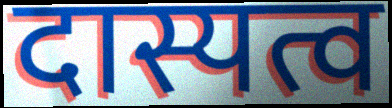
दास्यत्व